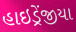
હાઇડ્રેંજીયા